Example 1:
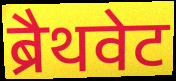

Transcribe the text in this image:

ब्रैथवेट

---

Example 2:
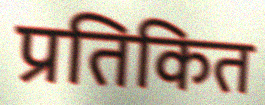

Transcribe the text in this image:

प्रतिकित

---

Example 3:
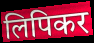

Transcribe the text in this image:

लिपिकर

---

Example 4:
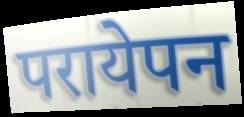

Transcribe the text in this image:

परायेपन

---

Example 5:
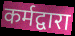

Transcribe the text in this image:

कर्मद्वारा